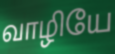
வாழியே